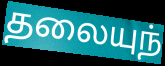
தலையுந்